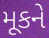
મૂકને